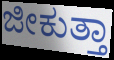
ಜೀಕುತ್ತಾ